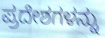
ಪ್ರದೇಶಗಳನ್ನು